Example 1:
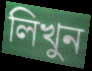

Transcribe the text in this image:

লিখুন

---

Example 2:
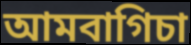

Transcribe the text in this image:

আমবাগিচা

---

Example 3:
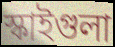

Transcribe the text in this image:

স্কাইগুলা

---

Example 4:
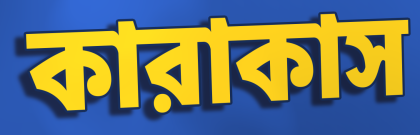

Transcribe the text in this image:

কারাকাস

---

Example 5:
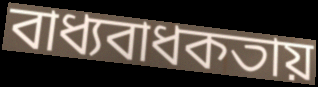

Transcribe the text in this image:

বাধ্যবাধকতায়